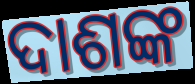
ଦାଶଙ୍କ